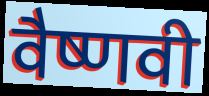
वैष्णवी